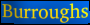
Burroughs